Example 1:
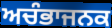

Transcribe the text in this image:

ਅਚੰਭਾਜਨਕ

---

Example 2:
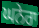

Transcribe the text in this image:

ਘਨੇਰਾ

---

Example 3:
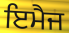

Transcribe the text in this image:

ਇਮੈਜ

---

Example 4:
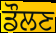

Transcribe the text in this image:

ਡੌਲਣ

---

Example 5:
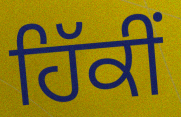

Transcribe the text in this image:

ਹਿੱਕੀਂ